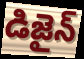
డిజైన్